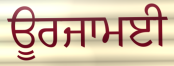
ਊਰਜਾਮਈ